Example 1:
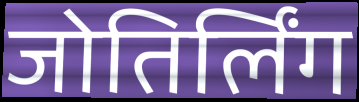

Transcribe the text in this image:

जोतिर्लिंग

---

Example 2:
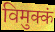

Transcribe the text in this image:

विमुक्कं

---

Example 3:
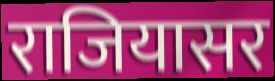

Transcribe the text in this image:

राजियासर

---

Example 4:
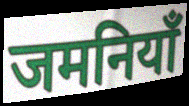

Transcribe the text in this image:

जमनियाँ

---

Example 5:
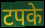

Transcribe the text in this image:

टपके